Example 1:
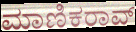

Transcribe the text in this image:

ಮಾಣಿಕರಾವ್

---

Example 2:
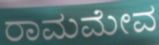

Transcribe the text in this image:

ರಾಮಮೇವ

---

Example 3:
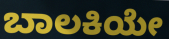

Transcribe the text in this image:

ಬಾಲಕಿಯೇ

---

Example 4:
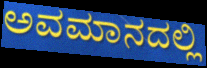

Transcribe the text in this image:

ಅವಮಾನದಲ್ಲಿ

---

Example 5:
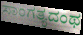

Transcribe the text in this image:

ಸಾಂಗತ್ಯದಂಥ